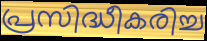
പ്രസിദ്ധീകരിച്ച